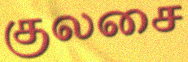
குலசை